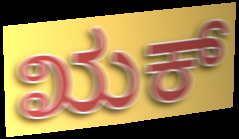
ಋಕ್